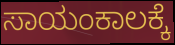
ಸಾಯಂಕಾಲಕ್ಕೆ